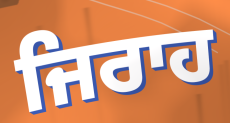
ਜਿਰਾਹ